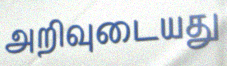
அறிவுடையது